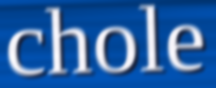
chole